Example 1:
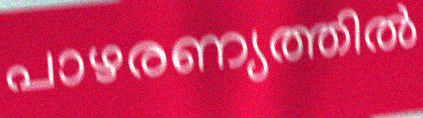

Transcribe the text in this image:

പാഴരണ്യത്തിൽ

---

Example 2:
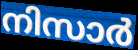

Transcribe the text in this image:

നിസാർ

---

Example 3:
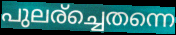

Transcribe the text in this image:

പുലര്ച്ചെതന്നെ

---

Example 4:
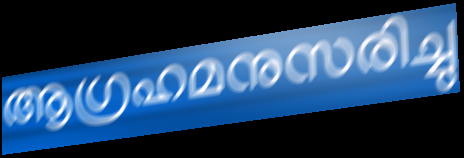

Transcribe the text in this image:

ആഗ്രഹമനുസരിച്ചു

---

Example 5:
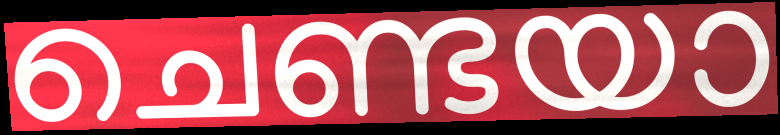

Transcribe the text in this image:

ചെണ്ടയാ